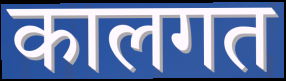
कालगत